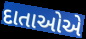
દાતાઓએ